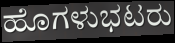
ಹೊಗಳುಭಟರು